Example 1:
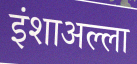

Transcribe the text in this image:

इंशाअल्ला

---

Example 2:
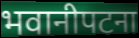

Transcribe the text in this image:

भवानीपटना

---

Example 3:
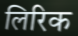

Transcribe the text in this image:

लिरिक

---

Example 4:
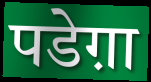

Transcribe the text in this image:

पडेग़ा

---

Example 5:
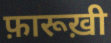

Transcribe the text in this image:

फ़ारूख़ी